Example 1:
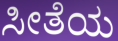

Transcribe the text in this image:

ಸೀತೆಯ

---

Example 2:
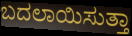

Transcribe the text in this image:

ಬದಲಾಯಿಸುತ್ತಾ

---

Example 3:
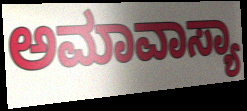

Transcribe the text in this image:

ಅಮಾವಾಸ್ಯಾ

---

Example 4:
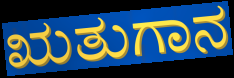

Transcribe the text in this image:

ಋತುಗಾನ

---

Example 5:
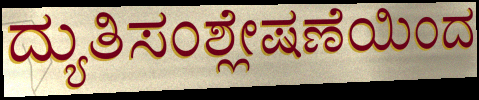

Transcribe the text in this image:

ದ್ಯುತಿಸಂಶ್ಲೇಷಣೆಯಿಂದ